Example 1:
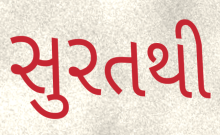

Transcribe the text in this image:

સુરતથી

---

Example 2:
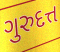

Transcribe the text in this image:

ગુરુદત્ત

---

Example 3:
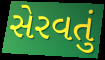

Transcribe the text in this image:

સેરવતું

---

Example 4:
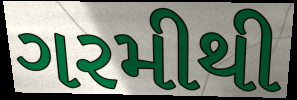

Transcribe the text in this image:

ગરમીથી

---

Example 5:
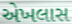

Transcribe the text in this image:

એખલાસ